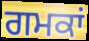
ਗਮਕਾਂ